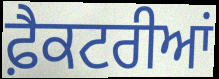
ਫ਼ੈਕਟਰੀਆਂ